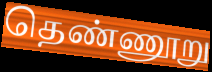
தெண்ணூறு